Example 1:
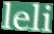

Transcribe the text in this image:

leli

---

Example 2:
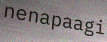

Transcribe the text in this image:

nenapaagi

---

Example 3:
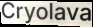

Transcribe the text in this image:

Cryolava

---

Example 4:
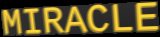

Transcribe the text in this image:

MIRACLE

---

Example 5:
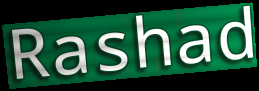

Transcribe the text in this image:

Rashad